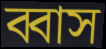
ব্বাস